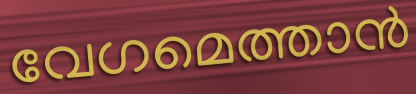
വേഗമെത്താൻ